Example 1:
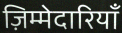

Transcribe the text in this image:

ज़िम्मेदारियाँ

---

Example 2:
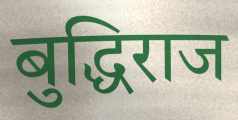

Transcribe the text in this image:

बुद्धिराज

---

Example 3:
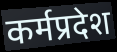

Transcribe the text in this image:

कर्मप्रदेश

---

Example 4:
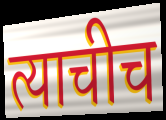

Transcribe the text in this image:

त्याचीच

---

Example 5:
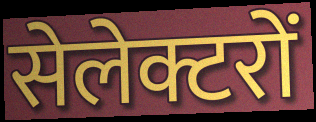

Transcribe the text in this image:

सेलेक्टरों